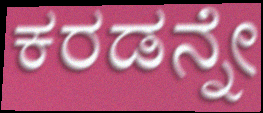
ಕರಡನ್ನೇ